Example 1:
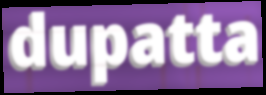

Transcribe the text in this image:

dupatta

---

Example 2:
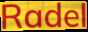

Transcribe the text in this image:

Radel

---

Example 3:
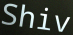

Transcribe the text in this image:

Shiv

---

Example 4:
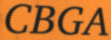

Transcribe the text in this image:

CBGA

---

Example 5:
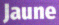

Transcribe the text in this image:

Jaune